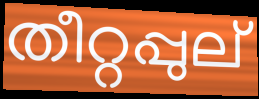
തീറ്റപ്പുല്